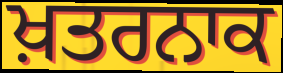
ਖ਼ਤਰਨਾਕ